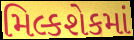
મિલ્કશેકમાં